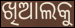
ଖିଆଲକୁ